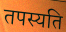
तपस्यति